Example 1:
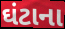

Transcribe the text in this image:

ઘંટાના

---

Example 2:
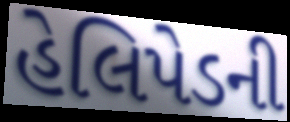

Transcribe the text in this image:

હેલિપેડની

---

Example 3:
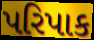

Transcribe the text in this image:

પરિપાક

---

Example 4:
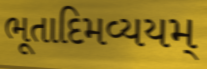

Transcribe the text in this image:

ભૂતાદિમવ્યયમ્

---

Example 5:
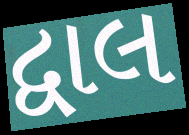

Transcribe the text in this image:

દ્વાલ